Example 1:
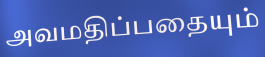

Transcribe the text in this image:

அவமதிப்பதையும்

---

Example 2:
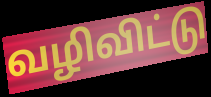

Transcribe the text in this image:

வழிவிட்டு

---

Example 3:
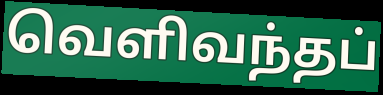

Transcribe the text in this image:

வெளிவந்தப்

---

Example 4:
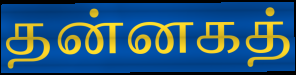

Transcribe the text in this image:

தன்னகத்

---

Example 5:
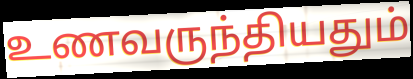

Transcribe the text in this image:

உணவருந்தியதும்